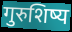
गुरुशिष्य